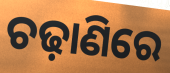
ଚଢ଼ାଣିରେ